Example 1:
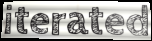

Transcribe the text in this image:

iterated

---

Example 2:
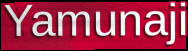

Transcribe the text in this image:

Yamunaji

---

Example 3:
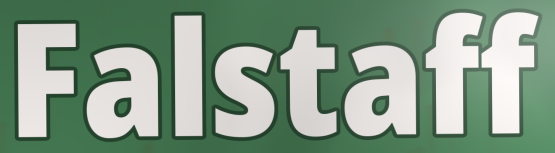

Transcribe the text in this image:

Falstaff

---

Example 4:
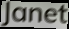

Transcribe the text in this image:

Janet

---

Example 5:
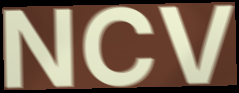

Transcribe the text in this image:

NCV